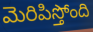
మెరిపిస్తోంది